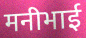
मनीभाई